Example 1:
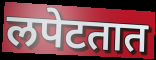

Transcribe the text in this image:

लपेटतात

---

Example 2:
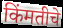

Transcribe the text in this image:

किंमतीचे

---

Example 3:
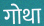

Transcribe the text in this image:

गोथा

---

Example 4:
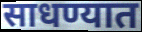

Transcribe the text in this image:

साधण्यात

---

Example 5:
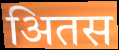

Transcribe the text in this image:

अितस